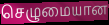
செழுமையான